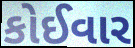
કોઈવાર